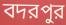
বদরপুর